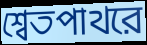
শ্বেতপাথরে